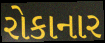
રોકાનાર